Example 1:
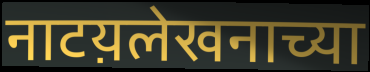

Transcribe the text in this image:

नाटय़लेखनाच्या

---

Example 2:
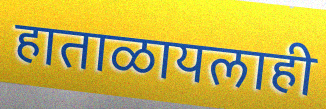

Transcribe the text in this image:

हाताळायलाही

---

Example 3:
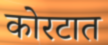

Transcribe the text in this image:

कोरटात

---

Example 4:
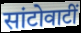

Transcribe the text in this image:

सांटोवाटीं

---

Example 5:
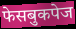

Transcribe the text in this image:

फेसबुकपेज